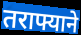
तराफ्याने